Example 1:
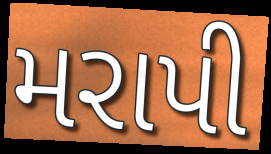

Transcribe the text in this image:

મરાપી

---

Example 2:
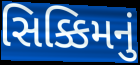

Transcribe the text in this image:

સિક્કિમનું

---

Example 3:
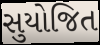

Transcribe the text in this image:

સુયોજિત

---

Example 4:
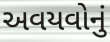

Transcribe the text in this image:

અવયવોનું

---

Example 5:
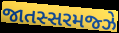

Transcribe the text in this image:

જાતસ્સરમજ્ઝે